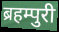
ब्रहम्पुरी